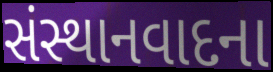
સંસ્થાનવાદના